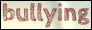
bullying